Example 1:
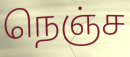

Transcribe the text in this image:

நெஞ்ச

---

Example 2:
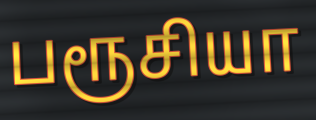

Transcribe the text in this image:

பரூசியா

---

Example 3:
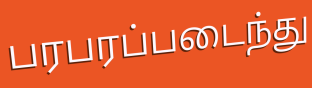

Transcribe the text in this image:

பரபரப்படைந்து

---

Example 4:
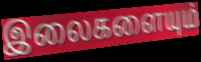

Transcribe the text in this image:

இலைகளையும்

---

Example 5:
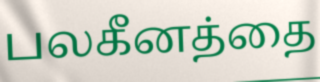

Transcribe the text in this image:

பலகீனத்தை